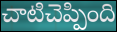
చాటిచెప్పింది